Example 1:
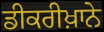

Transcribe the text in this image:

ਡੀਕਰੀਖ਼ਾਨੇ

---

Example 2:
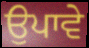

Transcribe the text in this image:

ਉਪਾਵੇ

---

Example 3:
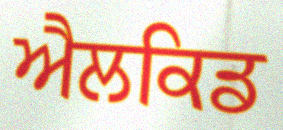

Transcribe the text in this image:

ਐਲਕਿਡ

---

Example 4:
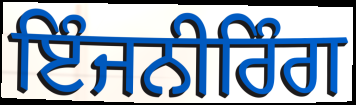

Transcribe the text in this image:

ਇੰਜਨੀਰਿੰਗ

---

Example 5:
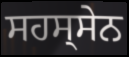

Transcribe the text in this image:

ਸਹਸ੍ਸੇਨ